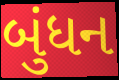
બુંધન